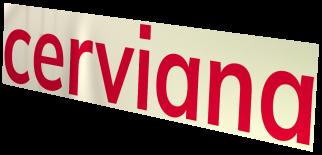
cerviana